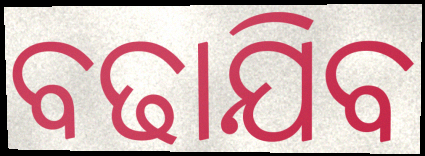
ବଢାଯିବ